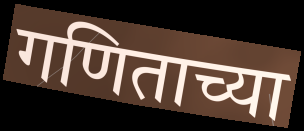
गणिताच्या